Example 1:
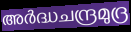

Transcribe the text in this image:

അർദ്ധചന്ദ്രമുദ്ര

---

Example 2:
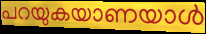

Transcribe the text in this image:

പറയുകയാണയാൾ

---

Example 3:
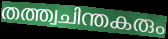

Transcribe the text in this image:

തത്ത്വചിന്തകരും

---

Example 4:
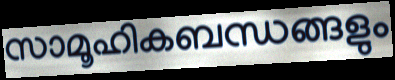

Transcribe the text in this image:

സാമൂഹികബന്ധങ്ങളും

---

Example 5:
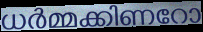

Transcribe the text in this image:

ധർമ്മക്കിണറോ